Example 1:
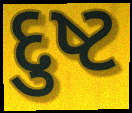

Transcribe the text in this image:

દુષ્ટ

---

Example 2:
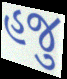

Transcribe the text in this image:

હજુ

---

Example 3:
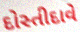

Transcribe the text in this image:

દોસ્તીદાવે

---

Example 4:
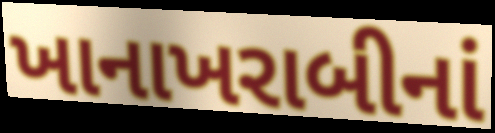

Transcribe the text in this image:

ખાનાખરાબીનાં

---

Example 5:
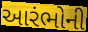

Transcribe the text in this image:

આરંભોની